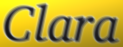
Clara